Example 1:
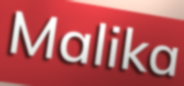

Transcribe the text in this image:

Malika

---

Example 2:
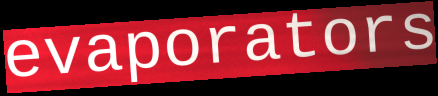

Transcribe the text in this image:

evaporators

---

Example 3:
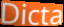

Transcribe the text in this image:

Dicta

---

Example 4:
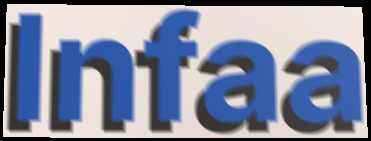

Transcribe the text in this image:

Infaa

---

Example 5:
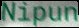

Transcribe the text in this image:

Nipun